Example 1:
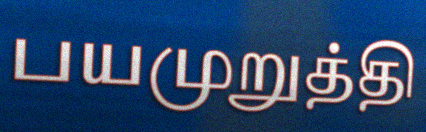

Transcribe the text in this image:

பயமுறுத்தி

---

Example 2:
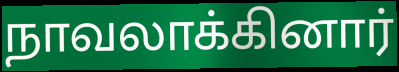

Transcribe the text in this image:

நாவலாக்கினார்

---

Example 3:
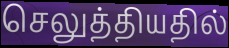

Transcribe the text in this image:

செலுத்தியதில்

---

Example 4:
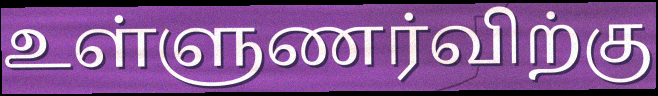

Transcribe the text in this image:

உள்ளுணர்விற்கு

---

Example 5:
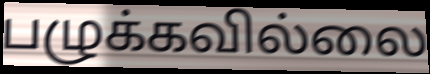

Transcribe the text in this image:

பழுக்கவில்லை